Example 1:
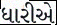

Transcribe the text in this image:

ધારીએ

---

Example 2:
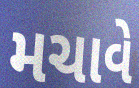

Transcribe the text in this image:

મચાવે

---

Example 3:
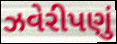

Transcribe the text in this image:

ઝવેરીપણું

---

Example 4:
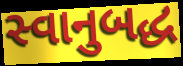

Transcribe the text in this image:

સ્વાનુબદ્ધ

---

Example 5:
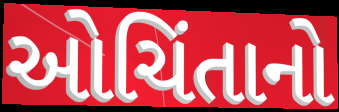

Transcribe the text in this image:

ઓચિંતાનો